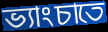
ভ্যাংচাতে